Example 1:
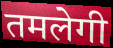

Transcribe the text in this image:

तमलेगी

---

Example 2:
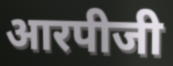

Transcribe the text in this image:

आरपीजी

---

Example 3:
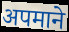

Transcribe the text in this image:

अपमाने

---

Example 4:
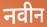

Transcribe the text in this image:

नवीन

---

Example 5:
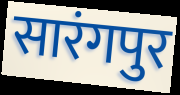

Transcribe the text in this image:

सारंगपुर